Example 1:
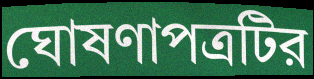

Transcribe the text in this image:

ঘোষণাপত্রটির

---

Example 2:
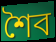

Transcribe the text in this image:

শৈব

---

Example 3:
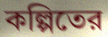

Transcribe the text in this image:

কল্পিতের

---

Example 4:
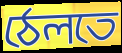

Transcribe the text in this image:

ঠেলতে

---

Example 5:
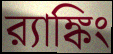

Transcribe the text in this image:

র‍্যাঙ্কিং